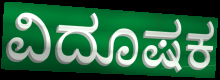
ವಿದೂಷಕ